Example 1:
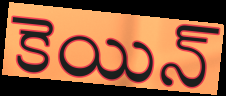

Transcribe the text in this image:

కెయిన్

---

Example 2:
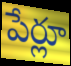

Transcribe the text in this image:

పేర్లూ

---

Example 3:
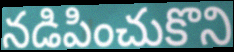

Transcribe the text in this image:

నడిపించుకొని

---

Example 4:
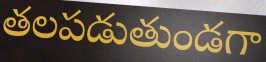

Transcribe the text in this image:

తలపడుతుండగా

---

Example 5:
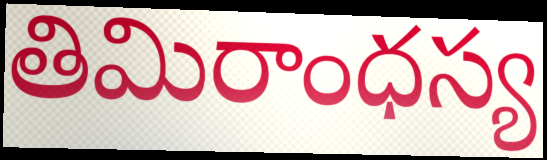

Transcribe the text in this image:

తిమిరాంధస్య